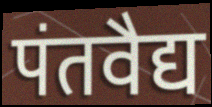
पंतवैद्य